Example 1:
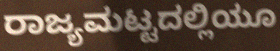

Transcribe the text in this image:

ರಾಜ್ಯಮಟ್ಟದಲ್ಲಿಯೂ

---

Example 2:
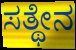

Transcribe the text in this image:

ಸತ್ಥೇನ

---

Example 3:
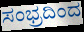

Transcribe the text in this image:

ಸಂಭ್ರದಿಂದ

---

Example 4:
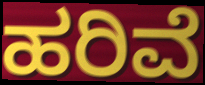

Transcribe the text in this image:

ಹರಿವೆ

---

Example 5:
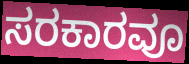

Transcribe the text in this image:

ಸರಕಾರವೂ